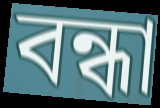
বন্ধা